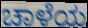
ಚಾಳೆಯ